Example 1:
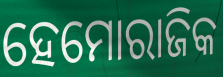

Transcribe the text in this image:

ହେମୋରାଜିକ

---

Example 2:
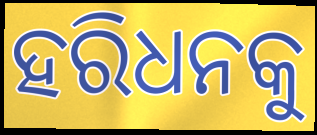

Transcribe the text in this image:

ହରିଧନକୁ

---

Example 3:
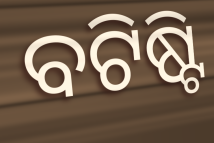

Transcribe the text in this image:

ବଟିଷ୍ଟି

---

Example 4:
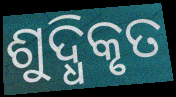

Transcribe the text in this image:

ଶୁଦ୍ଧିକୃତ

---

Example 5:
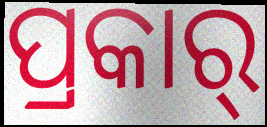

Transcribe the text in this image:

ପ୍ରକାର୍